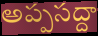
అప్పసద్దా